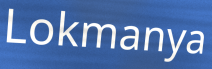
Lokmanya